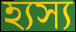
হ্যস্য